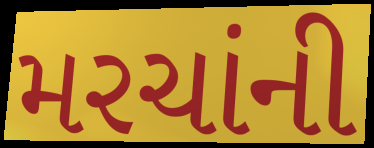
મરચાંની